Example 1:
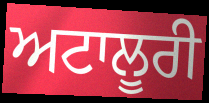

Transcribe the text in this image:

ਅਟਾਲੂਰੀ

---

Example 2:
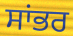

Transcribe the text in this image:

ਸਾਂਭਰ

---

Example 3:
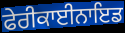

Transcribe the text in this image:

ਫੇਰੀਕਾਈਨਾਇਡ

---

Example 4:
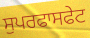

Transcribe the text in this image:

ਸੁਪਰਫਾਸਫੇਟ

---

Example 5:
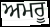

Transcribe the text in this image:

ਅਮਰੂ